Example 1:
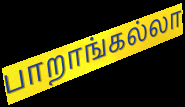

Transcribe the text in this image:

பாறாங்கல்லா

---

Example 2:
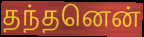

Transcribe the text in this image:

தந்தனென்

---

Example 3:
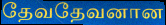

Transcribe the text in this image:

தேவதேவனான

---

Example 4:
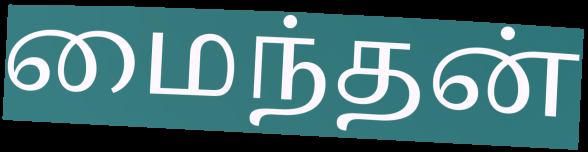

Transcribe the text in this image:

மைந்தன்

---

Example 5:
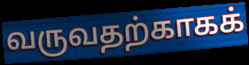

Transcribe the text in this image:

வருவதற்காகக்